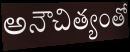
అనౌచిత్యంతో